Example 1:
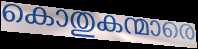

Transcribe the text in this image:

കൊതുകന്മാരെ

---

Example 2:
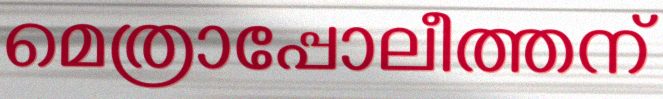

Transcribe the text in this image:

മെത്രാപ്പോലീത്തന്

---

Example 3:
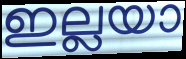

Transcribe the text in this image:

ഇല്ലയാ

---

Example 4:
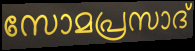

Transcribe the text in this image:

സോമപ്രസാദ്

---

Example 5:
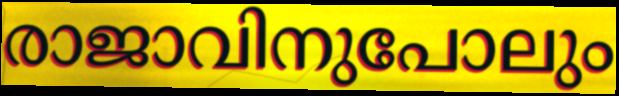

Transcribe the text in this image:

രാജാവിനുപോലും